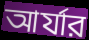
আর্যার